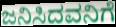
ಜನಿಸಿದವನಿಗೆ